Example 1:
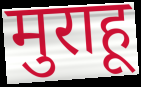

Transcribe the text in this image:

मुराहू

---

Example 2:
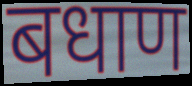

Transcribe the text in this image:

बधाण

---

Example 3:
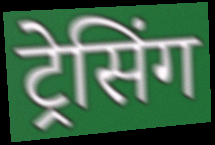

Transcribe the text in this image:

ट्रेसिंग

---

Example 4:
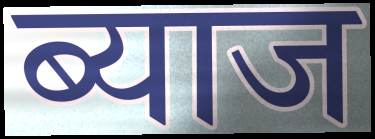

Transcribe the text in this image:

ब्‍याज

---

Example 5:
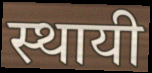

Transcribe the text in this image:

स्‍थायी